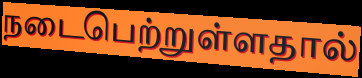
நடைபெற்றுள்ளதால்